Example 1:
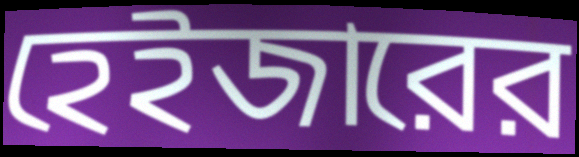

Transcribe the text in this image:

হেইজারের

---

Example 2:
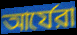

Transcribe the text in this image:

আর্যেরা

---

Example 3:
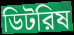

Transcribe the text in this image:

ডিটরিষ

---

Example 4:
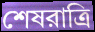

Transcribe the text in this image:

শেষরাত্রি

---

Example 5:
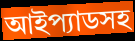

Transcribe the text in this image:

আইপ্যাডসহ